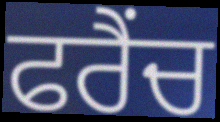
ਫਰੈਂਚ